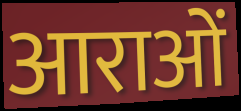
आराओं